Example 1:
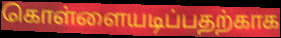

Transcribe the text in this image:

கொள்ளையடிப்பதற்காக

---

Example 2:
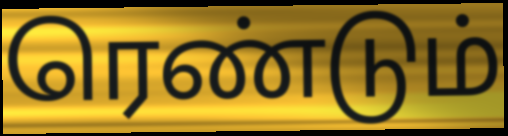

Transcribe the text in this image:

ரெண்டும்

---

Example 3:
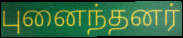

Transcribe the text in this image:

புனைந்தனர்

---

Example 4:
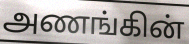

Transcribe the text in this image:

அணங்கின்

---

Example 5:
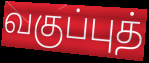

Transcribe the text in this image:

வகுப்புத்